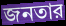
জনতার